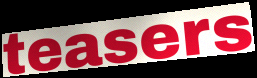
teasers